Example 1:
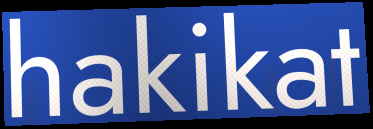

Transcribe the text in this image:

hakikat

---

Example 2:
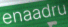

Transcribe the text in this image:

enaadru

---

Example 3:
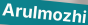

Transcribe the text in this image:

Arulmozhi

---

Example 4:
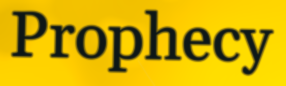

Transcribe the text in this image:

Prophecy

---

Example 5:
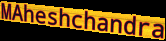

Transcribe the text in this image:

MAheshchandra